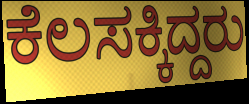
ಕೆಲಸಕ್ಕಿದ್ದರು